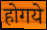
होगये